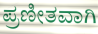
ಪ್ರಣೀತವಾಗಿ